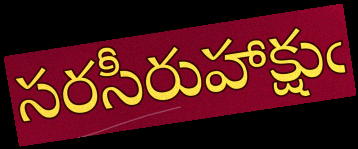
సరసీరుహాక్షుఁ